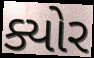
ક્યોર